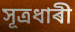
সূত্ৰধাৰী